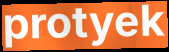
protyek